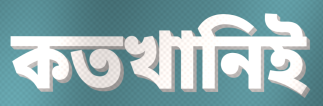
কতখানিই